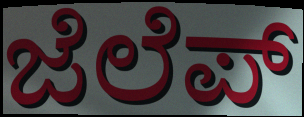
ಜೆಲೆಪ್